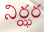
నిర్ఝర